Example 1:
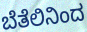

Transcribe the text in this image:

ಬೆತೆಲಿನಿಂದ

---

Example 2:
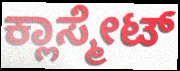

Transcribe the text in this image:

ಕ್ಲಾಸ್ಮೇಟ್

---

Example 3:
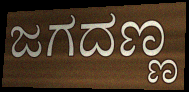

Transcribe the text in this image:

ಜಗದಣ್ಣ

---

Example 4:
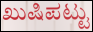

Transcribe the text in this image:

ಖುಷಿಪಟ್ಟು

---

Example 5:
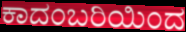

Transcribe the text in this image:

ಕಾದಂಬರಿಯಿಂದ